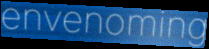
envenoming